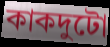
কাকদুটো